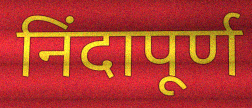
निंदापूर्ण